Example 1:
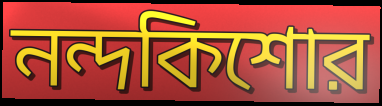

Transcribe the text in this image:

নন্দকিশোর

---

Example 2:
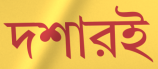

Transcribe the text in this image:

দশারই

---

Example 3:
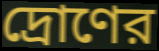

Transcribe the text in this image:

দ্রোণের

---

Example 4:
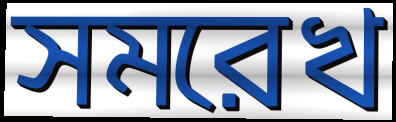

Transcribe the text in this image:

সমরেখ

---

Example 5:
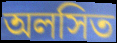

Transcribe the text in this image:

অলসিত